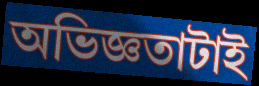
অভিজ্ঞতাটাই